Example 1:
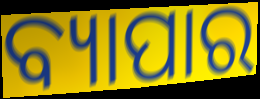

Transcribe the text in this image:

ବ୍ଯାପାର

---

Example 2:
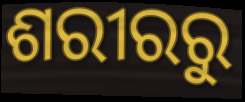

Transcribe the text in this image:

ଶରୀରରୁ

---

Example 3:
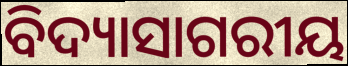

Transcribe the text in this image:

ବିଦ୍ୟାସାଗରୀୟ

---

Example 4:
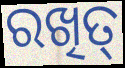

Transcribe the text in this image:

ରଖିତ୍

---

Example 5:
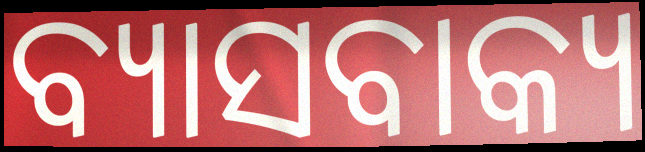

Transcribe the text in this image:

ବ୍ୟାସବାକ୍ୟ